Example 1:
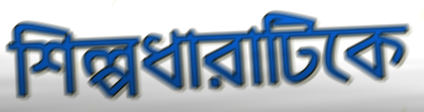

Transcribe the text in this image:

শিল্পধারাটিকে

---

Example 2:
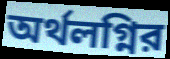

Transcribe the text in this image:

অর্থলগ্নির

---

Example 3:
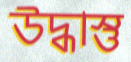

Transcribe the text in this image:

উদ্ধাস্তু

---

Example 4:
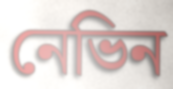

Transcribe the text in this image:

নেভিন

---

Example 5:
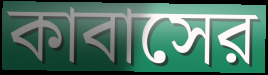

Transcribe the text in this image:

কাবাসের